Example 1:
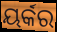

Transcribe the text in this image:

ୟର୍କର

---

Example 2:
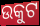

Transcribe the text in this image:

ଉକୁଟ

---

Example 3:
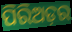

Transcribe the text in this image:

ପିରିଅଡ଼ର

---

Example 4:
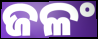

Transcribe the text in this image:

ଜଳଂ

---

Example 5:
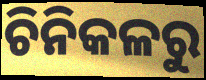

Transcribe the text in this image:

ଚିନିକଳରୁ